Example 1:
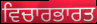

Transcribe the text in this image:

ਵਿਚਾਰਭਾਰਤ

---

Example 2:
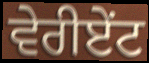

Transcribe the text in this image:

ਵੇਰੀਏਂਟ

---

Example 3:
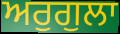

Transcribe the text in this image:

ਅਰੁਗੁਲਾ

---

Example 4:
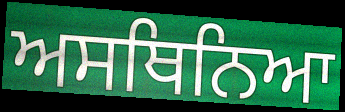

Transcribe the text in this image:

ਅਸਥਿਨਿਆ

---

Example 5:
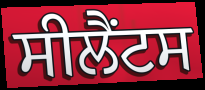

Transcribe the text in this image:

ਸੀਲੈਂਟਸ